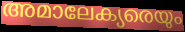
അമാലേക്യരെയും